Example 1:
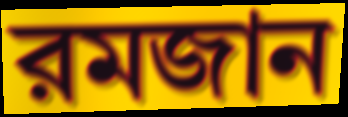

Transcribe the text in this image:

রমজান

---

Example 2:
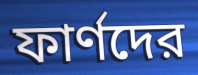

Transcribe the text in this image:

ফার্ণদের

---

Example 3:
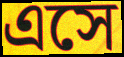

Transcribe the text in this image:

এসে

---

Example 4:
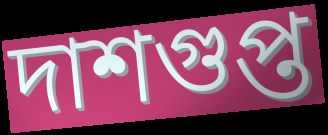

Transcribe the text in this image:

দাশগুপ্ত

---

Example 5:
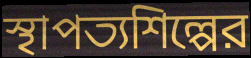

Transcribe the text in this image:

স্থাপত্যশিল্পের